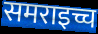
समराइच्च